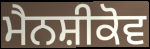
ਮੈਨਸ਼ੀਕੋਵ